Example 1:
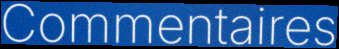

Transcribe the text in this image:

Commentaires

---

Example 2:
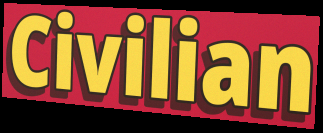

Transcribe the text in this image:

Civilian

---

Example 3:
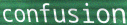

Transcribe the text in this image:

confusion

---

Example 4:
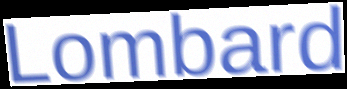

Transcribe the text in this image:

Lombard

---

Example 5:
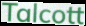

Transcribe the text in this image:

Talcott